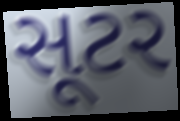
સૂટર